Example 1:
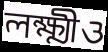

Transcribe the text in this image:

লক্ষ্মীও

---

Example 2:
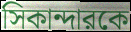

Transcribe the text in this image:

সিকান্দারকে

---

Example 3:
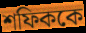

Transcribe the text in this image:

শফিককে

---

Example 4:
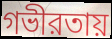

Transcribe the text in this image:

গভীরতায়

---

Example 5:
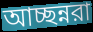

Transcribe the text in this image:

আচ্ছন্নরা